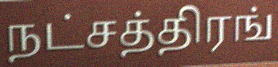
நட்சத்திரங்